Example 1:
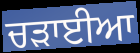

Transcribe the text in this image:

ਚੜਾਈਆ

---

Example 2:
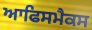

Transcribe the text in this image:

ਆਫਿਸਮੈਕਸ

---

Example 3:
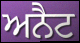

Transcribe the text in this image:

ਅਨੈਟ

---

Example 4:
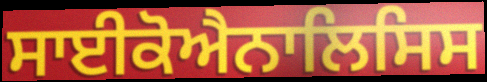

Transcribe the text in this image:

ਸਾਈਕੋਐਨਾਲਿਸਿਸ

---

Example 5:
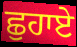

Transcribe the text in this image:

ਛੁਹਾਏ